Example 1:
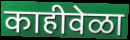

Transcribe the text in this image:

काहीवेळा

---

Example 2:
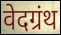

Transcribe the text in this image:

वेदग्रंथ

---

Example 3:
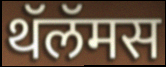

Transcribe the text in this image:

थॅलॅमस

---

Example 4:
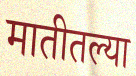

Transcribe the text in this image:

मातीतल्या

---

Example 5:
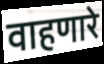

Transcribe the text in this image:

वाहणारे